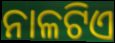
ନାଳଟିଏ